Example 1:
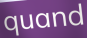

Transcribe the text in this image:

quand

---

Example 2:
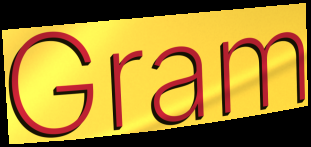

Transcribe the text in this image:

Gram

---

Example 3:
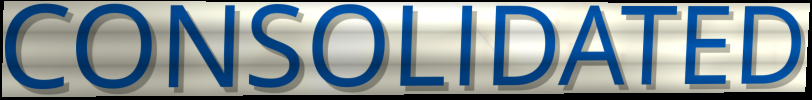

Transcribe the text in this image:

CONSOLIDATED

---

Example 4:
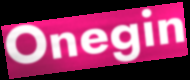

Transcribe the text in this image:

Onegin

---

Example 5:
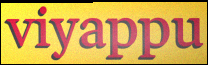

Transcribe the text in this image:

viyappu